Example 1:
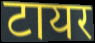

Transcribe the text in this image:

टायर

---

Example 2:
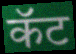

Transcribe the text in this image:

कॅट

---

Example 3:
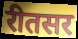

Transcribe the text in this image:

रीतसर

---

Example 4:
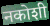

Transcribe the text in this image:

नकोशी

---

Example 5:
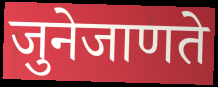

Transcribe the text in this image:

जुनेजाणते